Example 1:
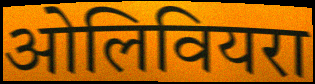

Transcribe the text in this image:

ओलिवियरा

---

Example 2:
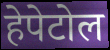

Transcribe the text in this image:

हेपेटोल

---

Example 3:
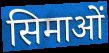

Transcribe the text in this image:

सिमाओं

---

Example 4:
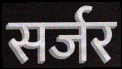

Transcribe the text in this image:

सर्जर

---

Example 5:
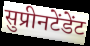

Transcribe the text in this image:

सुप्रीनटेंडेंट